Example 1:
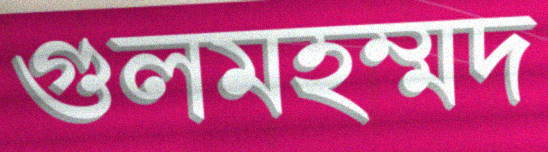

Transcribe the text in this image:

গুলমহম্মদ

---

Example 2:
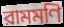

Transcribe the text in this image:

রামমণি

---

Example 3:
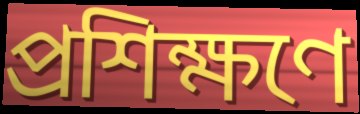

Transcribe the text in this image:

প্রশিক্ষণে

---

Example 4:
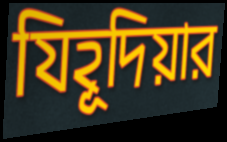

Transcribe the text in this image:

যিহূদিয়ার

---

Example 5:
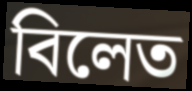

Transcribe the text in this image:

বিলেত